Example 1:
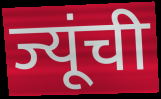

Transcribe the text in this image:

ज्यूंची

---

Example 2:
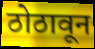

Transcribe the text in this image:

ठोठावून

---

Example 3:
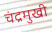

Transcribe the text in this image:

चंद्रमुखी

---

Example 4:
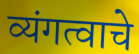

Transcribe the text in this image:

व्यंगत्वाचे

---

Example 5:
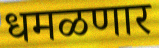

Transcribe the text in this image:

धमळणार